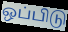
ஒப்பிடு